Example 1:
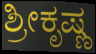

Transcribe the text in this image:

ಶ್ರೀಕೃಷ್ಣ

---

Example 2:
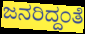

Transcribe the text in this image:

ಜನರಿದ್ದಂತೆ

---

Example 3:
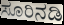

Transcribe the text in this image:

ಸೂರಿನಡಿ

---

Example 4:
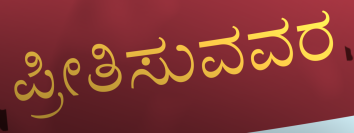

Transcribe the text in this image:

ಪ್ರೀತಿಸುವವರ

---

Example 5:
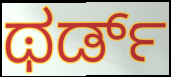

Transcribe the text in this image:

ಥರ್ಡ್